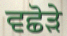
ਵਛੋੜੇ